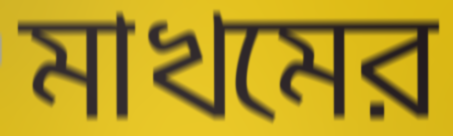
মাখমের